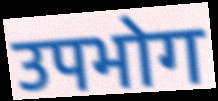
उपभोग